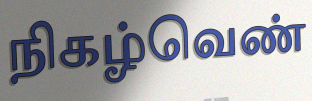
நிகழ்வெண்